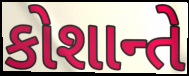
કોશાન્તે